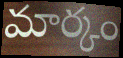
మార్కం